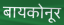
बायकोनूर